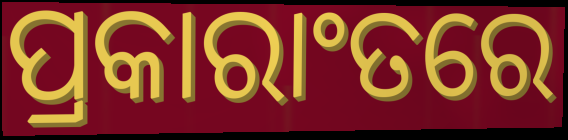
ପ୍ରକାରାଂତରେ